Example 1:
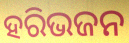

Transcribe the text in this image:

ହରିଭଜନ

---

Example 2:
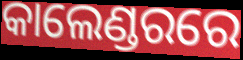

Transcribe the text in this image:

କାଲେଣ୍ଡରରେ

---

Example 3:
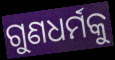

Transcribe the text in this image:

ଗୁଣଧର୍ମକୁ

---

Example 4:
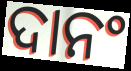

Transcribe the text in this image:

ଦାନଂ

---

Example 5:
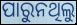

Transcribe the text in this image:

ପାରୁନଥିଲୁ